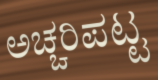
ಅಚ್ಚರಿಪಟ್ಟ